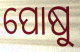
ପୋଷୁ